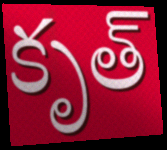
కృత్